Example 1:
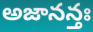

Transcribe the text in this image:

అజానన్తః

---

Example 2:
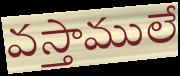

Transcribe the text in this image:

వస్తాములే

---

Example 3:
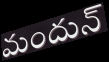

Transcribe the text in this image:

మందున్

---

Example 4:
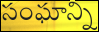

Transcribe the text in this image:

సంఘాన్ని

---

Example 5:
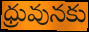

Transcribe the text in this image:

ధ్రువునకు